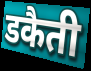
डकैती